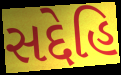
સદ્દેહિ